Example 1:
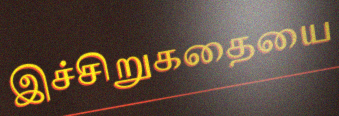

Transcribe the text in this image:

இச்சிறுகதையை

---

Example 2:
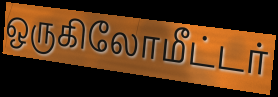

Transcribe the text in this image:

ஒருகிலோமீட்டர்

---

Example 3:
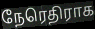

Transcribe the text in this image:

நேரெதிராக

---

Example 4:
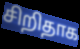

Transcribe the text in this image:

சிறிதாக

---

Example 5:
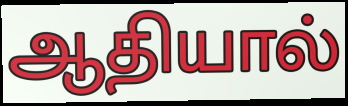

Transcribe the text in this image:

ஆதியால்